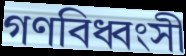
গণবিধ্বংসী